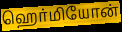
ஹெர்மியோன்